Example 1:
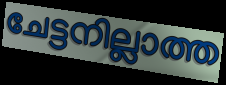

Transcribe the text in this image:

ചേട്ടനില്ലാത്ത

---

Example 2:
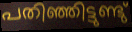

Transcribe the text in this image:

പതിഞ്ഞിട്ടുണ്ടു്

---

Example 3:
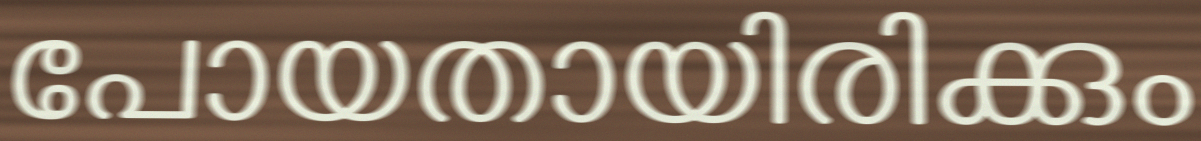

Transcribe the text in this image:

പോയതായിരിക്കും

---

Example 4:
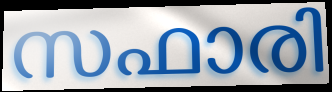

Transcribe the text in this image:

സഫാരി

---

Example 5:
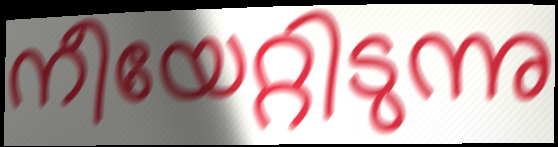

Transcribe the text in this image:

നീയേറ്റിടുന്നു